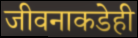
जीवनाकडेही